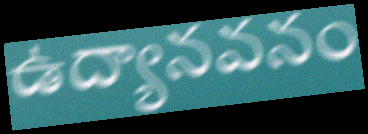
ఉద్యానవనం